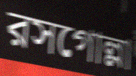
রসগোল্লা